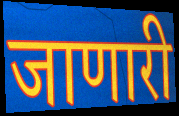
जाणारी